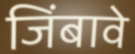
जिंबावे